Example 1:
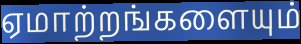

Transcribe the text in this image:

ஏமாற்றங்களையும்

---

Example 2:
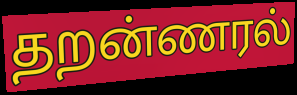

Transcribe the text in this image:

தறன்ணரல்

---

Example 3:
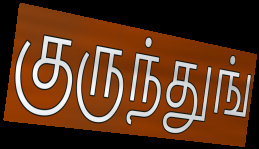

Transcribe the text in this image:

குருந்துங்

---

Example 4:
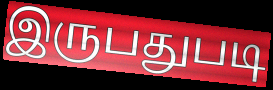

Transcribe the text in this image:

இருபதுபடி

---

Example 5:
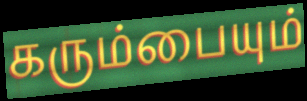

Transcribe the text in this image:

கரும்பையும்